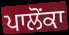
ਪਾਲੋਂਕਾ